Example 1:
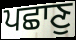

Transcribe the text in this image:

ਪਛਾਣੁ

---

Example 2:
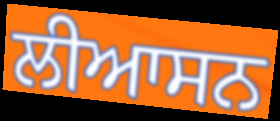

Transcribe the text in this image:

ਲੀਆਸਨ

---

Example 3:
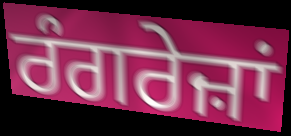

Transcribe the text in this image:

ਰੰਗਰੇਜ਼ਾਂ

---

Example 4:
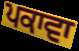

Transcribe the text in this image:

ਪਕਾਵਾ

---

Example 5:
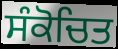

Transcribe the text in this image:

ਸੰਕੋਚਿਤ